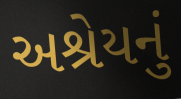
અશ્રેયનું